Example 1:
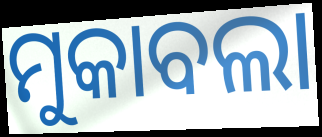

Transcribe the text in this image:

ମୁକାବଲା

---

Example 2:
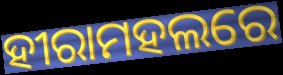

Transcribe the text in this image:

ହୀରାମହଲରେ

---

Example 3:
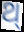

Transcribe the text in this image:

ଥ୍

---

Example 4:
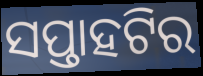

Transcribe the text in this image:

ସପ୍ତାହଟିର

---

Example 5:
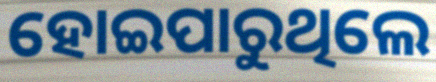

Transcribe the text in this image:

ହୋଇପାରୁଥିଲେ